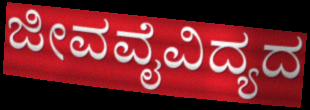
ಜೀವವೈವಿದ್ಯದ